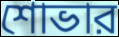
শোভার